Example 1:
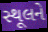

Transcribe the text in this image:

સ્થૂલને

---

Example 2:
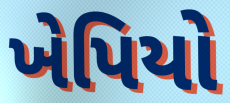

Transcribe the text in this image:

ખેપિયો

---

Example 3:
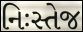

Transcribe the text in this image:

નિઃસ્તેજ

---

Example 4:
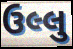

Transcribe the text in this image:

ઉલ્લુ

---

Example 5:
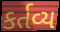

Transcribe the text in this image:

કર્તવ્ય